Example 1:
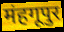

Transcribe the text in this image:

मंहगूपुर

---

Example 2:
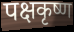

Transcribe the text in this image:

पक्षकृष्ण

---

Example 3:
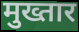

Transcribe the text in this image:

मुख्तार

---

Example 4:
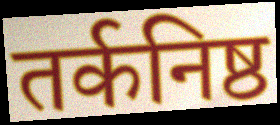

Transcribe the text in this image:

तर्कनिष्ठ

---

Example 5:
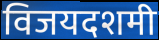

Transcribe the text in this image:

विजयदशमी